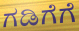
ಗಡಿಗೆಗೆ